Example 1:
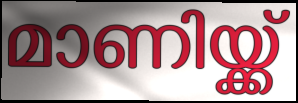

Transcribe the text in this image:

മാണിയ്ക്ക്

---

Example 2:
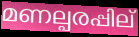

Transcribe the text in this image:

മണല്പരപ്പില്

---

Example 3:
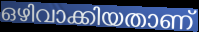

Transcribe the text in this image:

ഒഴിവാക്കിയതാണ്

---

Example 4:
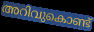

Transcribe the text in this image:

അറിവുകൊണ്ട്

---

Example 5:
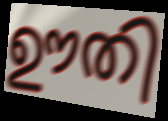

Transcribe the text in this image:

ഊതി